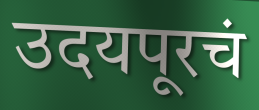
उदयपूरचं